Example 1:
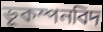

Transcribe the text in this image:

ভূকম্পনবিদ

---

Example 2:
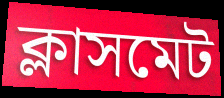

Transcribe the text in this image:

ক্লাসমেট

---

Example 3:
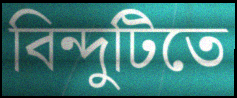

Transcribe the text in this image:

বিন্দুটিতে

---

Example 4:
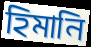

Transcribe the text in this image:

হিমানি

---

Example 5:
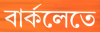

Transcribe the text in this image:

বার্কলেতে